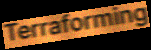
Terraforming